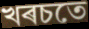
খৰচতে